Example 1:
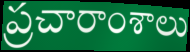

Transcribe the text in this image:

ప్రచారాంశాలు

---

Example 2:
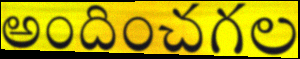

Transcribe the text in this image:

అందించగల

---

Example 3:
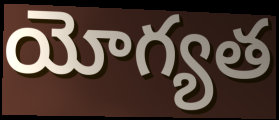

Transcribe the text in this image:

యోగ్యత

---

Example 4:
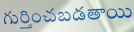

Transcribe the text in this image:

గుర్తించబడతాయి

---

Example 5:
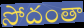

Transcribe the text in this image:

సోదంతా